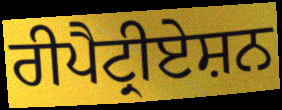
ਰੀਪੈਟ੍ਰੀਏਸ਼ਨ